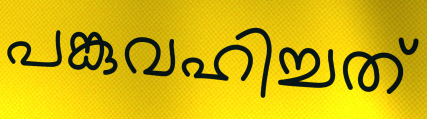
പങ്കുവഹിച്ചത്